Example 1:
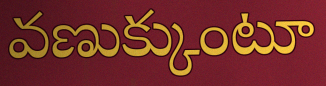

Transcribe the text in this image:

వణుక్కుంటూ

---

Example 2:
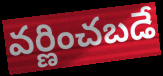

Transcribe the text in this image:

వర్ణించబడే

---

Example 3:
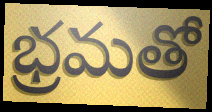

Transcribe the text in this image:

భ్రమతో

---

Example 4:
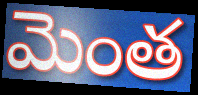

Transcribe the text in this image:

మెంత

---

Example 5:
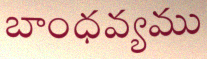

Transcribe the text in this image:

బాంధవ్యము